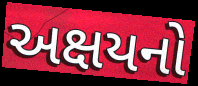
અક્ષયનો